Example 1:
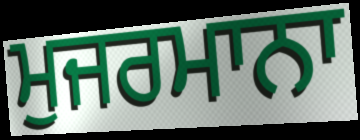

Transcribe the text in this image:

ਮੁਜਰਮਾਨਾ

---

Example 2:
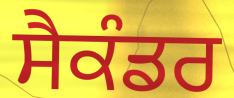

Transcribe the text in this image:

ਸੈਕੰਡਰ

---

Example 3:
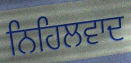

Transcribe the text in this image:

ਨਿਹਿਲਵਾਦ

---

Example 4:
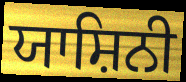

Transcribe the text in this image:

ਯਾਸ਼ਿਨੀ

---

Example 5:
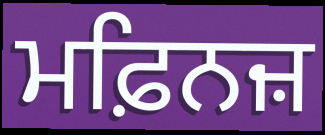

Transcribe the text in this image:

ਮਫ਼ਿਨਜ਼